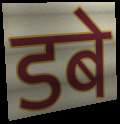
डबे